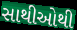
સાથીઓથી